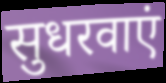
सुधरवाएं